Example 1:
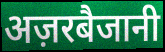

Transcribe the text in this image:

अज़रबैजानी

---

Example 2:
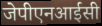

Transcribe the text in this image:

जेपीएनआईसी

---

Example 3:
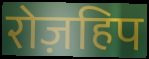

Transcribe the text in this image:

रोज़हिप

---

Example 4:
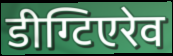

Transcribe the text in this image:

डीग्टिएरेव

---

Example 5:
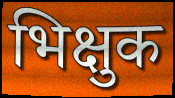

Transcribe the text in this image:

भिक्षुक